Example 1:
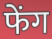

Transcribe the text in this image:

फेंग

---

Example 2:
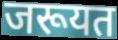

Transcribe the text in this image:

जरूयत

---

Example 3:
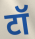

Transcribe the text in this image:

टॉ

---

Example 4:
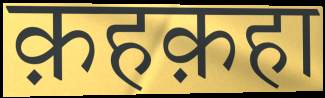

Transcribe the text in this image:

क़हक़हा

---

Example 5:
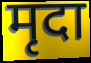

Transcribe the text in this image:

मृदा